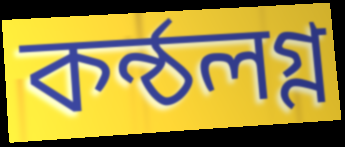
কন্ঠলগ্ন